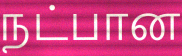
நட்பான